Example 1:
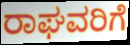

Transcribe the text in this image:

ರಾಘವರಿಗೆ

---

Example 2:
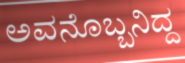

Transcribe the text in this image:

ಅವನೊಬ್ಬನಿದ್ದ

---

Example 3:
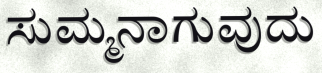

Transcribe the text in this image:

ಸುಮ್ಮನಾಗುವುದು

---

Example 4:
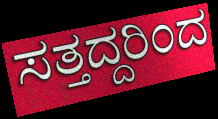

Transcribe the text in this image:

ಸತ್ತದ್ದರಿಂದ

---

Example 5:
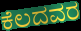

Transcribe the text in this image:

ಕೆಲದವರ